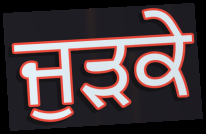
ਜੁੜਕੇ